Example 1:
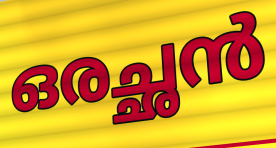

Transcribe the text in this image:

ഒരച്ഛൻ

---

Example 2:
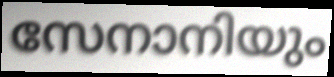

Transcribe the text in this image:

സേനാനിയും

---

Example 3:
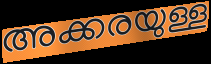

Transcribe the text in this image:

അക്കരയുള്ള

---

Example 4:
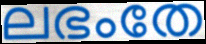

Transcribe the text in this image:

ലഭംതേ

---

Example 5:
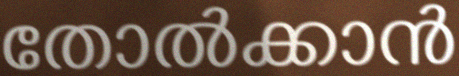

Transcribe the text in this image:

തോൽക്കാൻ